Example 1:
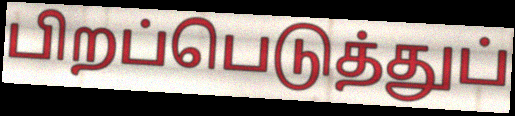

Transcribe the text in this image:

பிறப்பெடுத்துப்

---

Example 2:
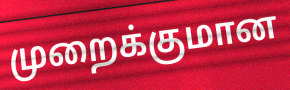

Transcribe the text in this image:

முறைக்குமான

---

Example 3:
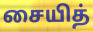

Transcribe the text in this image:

சையித்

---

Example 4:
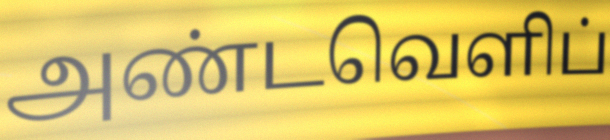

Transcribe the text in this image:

அண்டவெளிப்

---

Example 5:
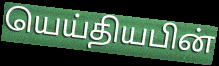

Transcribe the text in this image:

யெய்தியபின்